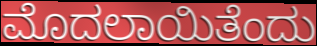
ಮೊದಲಾಯಿತೆಂದು